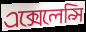
এক্সেলেন্সি